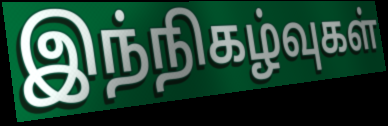
இந்நிகழ்வுகள்